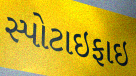
સ્પોટાઇફાઇ